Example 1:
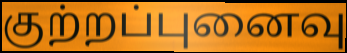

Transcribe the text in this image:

குற்றப்புனைவு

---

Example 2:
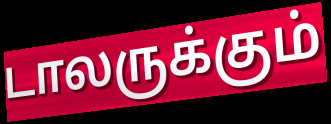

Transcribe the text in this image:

டாலருக்கும்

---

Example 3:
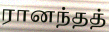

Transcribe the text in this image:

ரானந்தத்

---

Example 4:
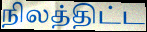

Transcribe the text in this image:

நிலத்திட்ட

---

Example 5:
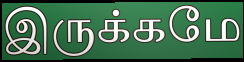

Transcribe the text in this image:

இருக்கமே